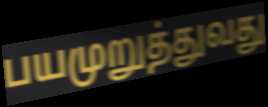
பயமுறுத்துவது